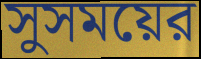
সুসময়ের